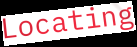
Locating